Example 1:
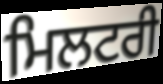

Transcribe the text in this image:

ਮਿਲਟਰੀ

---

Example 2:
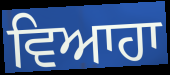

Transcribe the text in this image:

ਵਿਆਹਾ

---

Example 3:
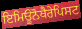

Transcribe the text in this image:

ਇਮਿਊਨੋਥੈਰੇਪਿਸਟ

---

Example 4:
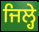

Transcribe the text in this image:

ਜਿਲ੍ਹੇ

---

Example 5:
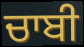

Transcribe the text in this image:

ਚਾਬੀ